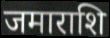
जमाराशि